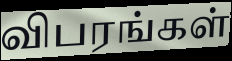
விபரங்கள்